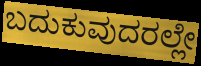
ಬದುಕುವುದರಲ್ಲೇ